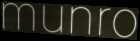
munro